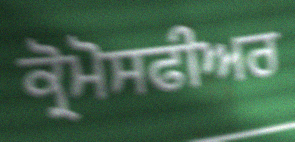
ਕ੍ਰੋਮੋਸਫੀਅਰ